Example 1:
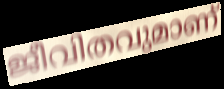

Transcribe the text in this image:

ജീവിതവുമാണ്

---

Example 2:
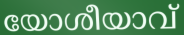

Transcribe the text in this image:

യോശീയാവ്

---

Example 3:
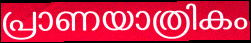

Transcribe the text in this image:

പ്രാണയാത്രികം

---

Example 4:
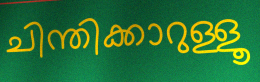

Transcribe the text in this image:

ചിന്തിക്കാറുള്ളൂ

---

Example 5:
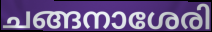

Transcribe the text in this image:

ചങ്ങനാശേരി